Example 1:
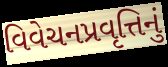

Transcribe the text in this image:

વિવેચનપ્રવૃત્તિનું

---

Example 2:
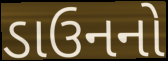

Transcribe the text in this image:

ડાઉનનો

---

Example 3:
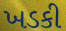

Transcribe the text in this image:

ખડકી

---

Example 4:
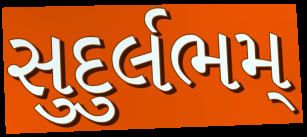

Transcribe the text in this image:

સુદુર્લભમ્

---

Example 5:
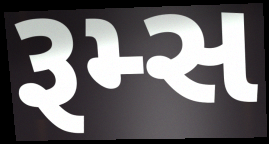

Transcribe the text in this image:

રૂમ્સ